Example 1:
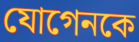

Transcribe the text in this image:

যোগেনকে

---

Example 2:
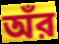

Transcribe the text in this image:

অঁর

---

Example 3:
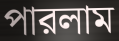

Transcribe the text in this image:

পারলাম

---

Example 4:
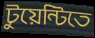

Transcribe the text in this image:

টুয়েন্টিতে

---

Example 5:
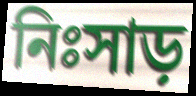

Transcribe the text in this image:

নিঃসাড়